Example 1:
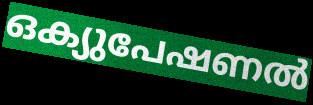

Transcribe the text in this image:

ഒക്യുപേഷണൽ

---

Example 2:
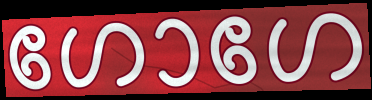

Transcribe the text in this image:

ഗോഗേ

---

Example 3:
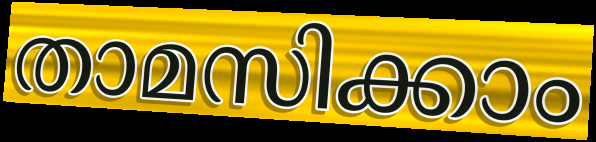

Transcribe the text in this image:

താമസിക്കാം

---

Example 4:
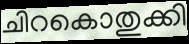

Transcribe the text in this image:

ചിറകൊതുക്കി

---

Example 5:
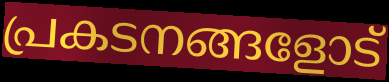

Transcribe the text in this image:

പ്രകടനങ്ങളോട്